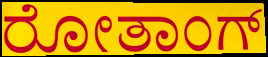
ರೋತಾಂಗ್